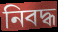
নিবদ্ধ